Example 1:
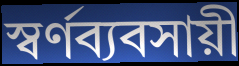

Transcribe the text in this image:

স্বর্ণব্যবসায়ী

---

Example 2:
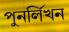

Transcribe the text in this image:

পুনর্লিখন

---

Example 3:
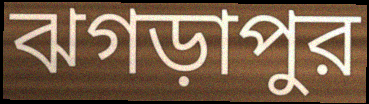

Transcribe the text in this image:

ঝগড়াপুর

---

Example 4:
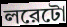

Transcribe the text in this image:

লরেটো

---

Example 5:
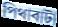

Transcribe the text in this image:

পিথাবাটা